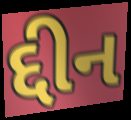
દ્દીન